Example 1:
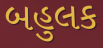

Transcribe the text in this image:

બહુલક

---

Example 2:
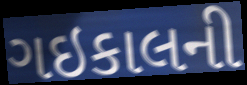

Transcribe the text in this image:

ગઇકાલની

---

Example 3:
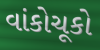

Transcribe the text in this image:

વાંકોચૂકો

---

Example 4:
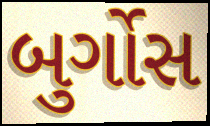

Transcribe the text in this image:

બુર્ગોસ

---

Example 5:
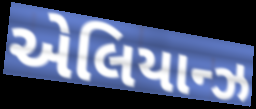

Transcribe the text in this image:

એલિયાન્ઝ